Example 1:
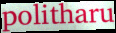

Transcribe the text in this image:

politharu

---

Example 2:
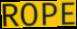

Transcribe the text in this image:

ROPE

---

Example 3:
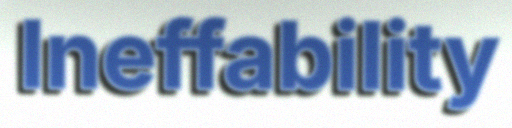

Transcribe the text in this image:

Ineffability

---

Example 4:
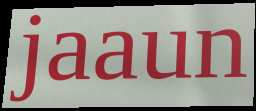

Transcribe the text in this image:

jaaun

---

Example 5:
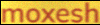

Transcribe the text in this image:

moxesh